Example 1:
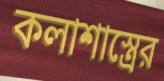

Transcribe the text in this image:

কলাশাস্ত্রের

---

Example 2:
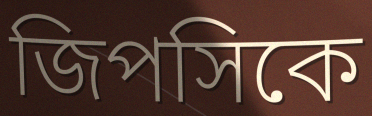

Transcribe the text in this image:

জিপসিকে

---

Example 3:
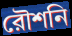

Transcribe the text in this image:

রৌশনি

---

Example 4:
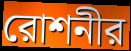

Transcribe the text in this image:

রোশনীর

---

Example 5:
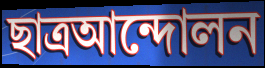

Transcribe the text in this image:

ছাত্রআন্দোলন